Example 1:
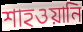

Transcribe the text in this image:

শাহওয়ানি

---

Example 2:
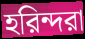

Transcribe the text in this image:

হরিন্দরা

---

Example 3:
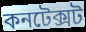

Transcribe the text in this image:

কনটেক্সট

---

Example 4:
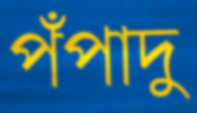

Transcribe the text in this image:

পঁপাদু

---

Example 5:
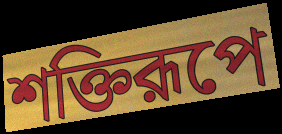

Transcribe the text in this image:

শক্তিরূপে